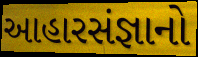
આહારસંજ્ઞાનો